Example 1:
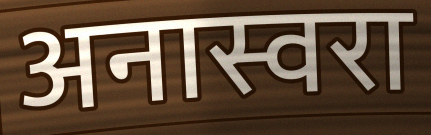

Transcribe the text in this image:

अनास्वरा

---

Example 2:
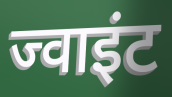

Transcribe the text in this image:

ज्वाइंट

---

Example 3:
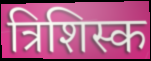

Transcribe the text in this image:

त्रिशिस्क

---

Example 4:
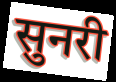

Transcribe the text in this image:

सुनरी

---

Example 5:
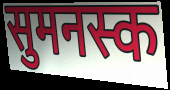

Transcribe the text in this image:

सुमनस्क